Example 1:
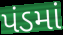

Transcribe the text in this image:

પંડમાં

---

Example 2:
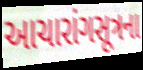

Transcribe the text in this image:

આચારાંગસૂત્રના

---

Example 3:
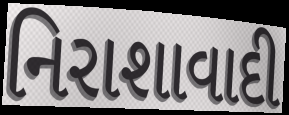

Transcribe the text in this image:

નિરાશાવાદી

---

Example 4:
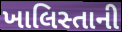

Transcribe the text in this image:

ખાલિસ્તાની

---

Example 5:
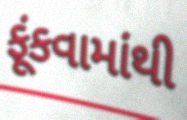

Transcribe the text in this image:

ફૂંકવામાંથી